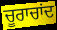
ਚੂਰਾਚਾਂਦ